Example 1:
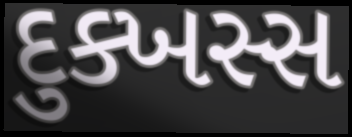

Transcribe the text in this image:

દુક્ખસ્સ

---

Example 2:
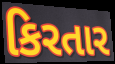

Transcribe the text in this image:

કિરતાર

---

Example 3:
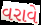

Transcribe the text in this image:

વરાવે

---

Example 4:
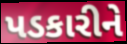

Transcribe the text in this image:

પડકારીને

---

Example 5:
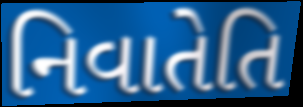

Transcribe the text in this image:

નિવાતેતિ